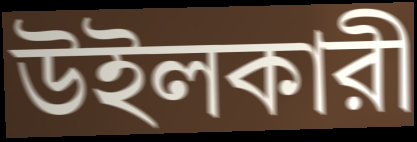
উইলকারী